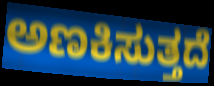
ಅಣಕಿಸುತ್ತದೆ